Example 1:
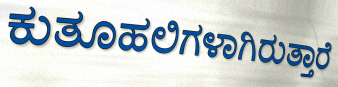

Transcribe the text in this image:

ಕುತೂಹಲಿಗಳಾಗಿರುತ್ತಾರೆ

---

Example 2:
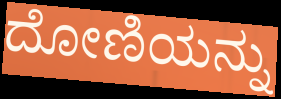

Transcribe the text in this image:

ದೋಣಿಯನ್ನು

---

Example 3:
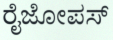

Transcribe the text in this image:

ರೈಜೋಪಸ್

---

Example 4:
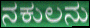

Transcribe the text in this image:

ನಕುಲನು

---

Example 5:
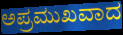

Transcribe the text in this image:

ಅಪ್ರಮುಖವಾದ